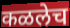
कळलेच